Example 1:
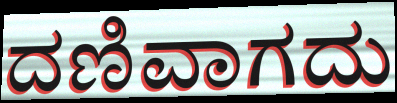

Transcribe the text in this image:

ದಣಿವಾಗದು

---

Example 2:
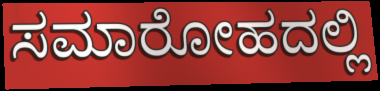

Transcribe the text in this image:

ಸಮಾರೋಹದಲ್ಲಿ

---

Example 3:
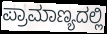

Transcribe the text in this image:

ಪ್ರಾಮಾಣ್ಯದಲ್ಲಿ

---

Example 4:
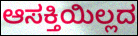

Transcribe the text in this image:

ಆಸಕ್ತಿಯಿಲ್ಲದ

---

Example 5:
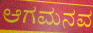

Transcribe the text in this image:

ಆಗಮನವ